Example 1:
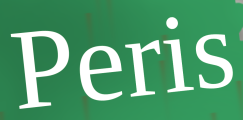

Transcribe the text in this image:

Peris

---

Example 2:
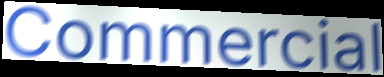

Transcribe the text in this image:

Commercial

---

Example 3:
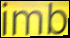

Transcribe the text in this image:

imb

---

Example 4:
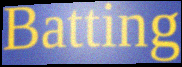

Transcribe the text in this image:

Batting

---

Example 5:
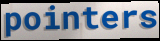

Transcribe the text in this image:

pointers